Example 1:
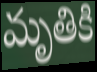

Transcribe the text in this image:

మృతికి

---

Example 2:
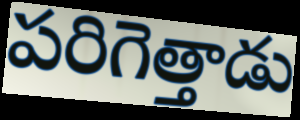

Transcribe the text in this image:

పరిగెత్తాడు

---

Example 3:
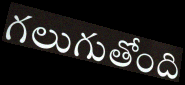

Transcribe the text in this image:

గలుగుతోంది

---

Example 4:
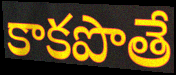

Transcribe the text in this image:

కాకపొతే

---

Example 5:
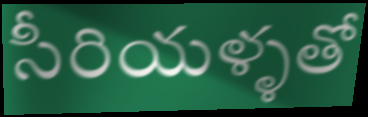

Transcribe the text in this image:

సీరియళ్ళతో